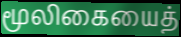
மூலிகையைத்